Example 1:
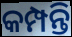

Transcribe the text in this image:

କମ୍ପନ୍ତି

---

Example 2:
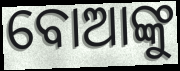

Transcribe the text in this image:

ବୋଆଙ୍କୁ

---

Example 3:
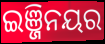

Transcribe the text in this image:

ଇଞ୍ଜିନୟର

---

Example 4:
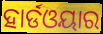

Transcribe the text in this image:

ହାର୍ଡଓୟାର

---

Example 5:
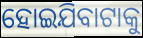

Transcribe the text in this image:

ହୋଇଯିବାଟାକୁ